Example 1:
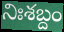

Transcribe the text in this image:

నిఃశబ్దం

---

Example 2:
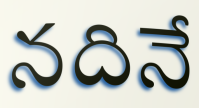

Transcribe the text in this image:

నదినే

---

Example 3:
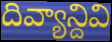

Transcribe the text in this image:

దివ్యాన్దివి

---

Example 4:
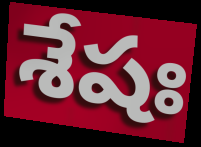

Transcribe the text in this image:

శేషః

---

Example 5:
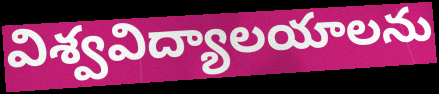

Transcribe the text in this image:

విశ్వవిద్యాలయాలను